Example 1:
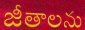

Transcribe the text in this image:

జీతాలను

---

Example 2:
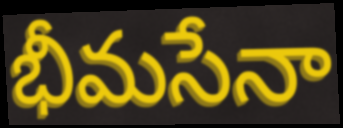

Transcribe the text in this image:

భీమసేనా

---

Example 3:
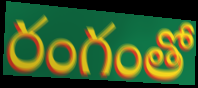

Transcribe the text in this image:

రంగంతో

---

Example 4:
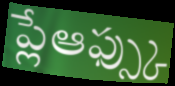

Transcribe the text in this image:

ప్లేఆఫ్స్కు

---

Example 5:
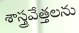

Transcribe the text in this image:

శాస్త్రవేత్తలను